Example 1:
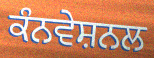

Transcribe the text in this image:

ਕੰਨਵੇਸ਼ਨਲ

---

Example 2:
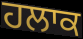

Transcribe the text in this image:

ਹਲਾਕ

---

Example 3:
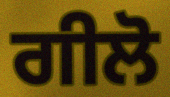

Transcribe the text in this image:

ਗੀਲੋ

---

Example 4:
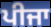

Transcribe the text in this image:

ਪੀਜਾ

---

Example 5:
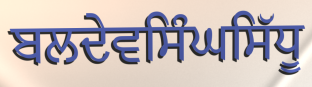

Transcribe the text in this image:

ਬਲਦੇਵਸਿੰਘਸਿੱਧੂ